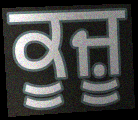
ਕੂਜ਼ੂ